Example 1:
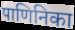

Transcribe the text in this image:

पाणिनिका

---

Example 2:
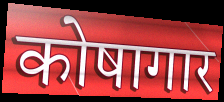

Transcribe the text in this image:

कोषागार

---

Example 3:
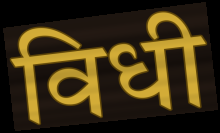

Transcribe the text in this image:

विधी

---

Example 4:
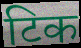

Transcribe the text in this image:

टिक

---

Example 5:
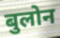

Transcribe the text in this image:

बुलोन